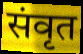
संवृत